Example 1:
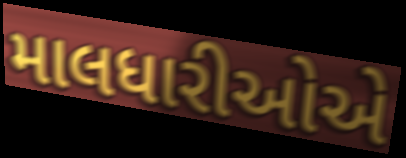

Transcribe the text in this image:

માલધારીઓએ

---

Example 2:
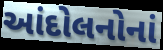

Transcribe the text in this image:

આંદોલનોનાં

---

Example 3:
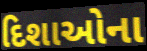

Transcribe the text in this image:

દિશાઓના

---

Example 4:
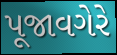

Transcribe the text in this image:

પૂજાવગેરે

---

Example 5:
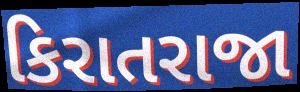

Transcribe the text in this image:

કિરાતરાજા